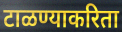
टाळण्याकरिता